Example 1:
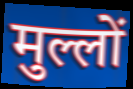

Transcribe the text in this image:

मुल्लों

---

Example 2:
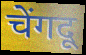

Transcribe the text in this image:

चेंगदू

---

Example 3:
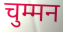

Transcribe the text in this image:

चुम्मन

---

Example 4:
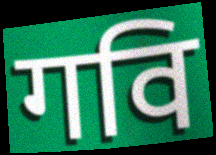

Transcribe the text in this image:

गवि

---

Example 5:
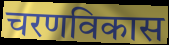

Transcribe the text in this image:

चरणविकास